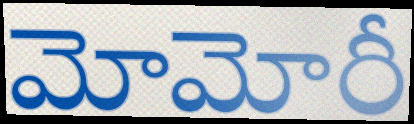
మోమోరీ